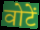
वोटें